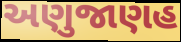
અણુજાણહ